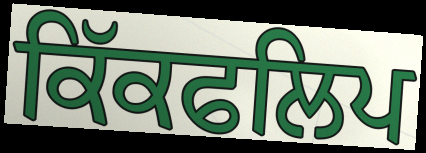
ਕਿੱਕਫਲਿਪ